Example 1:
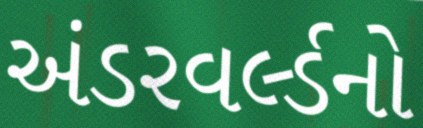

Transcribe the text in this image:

અંડરવર્લ્ડનો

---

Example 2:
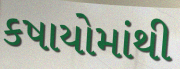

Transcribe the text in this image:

કષાયોમાંથી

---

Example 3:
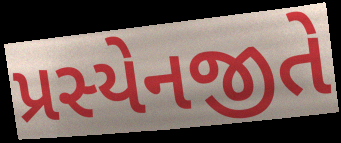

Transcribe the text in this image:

પ્રસ્યેનજીતે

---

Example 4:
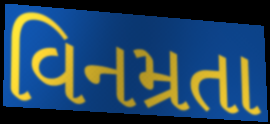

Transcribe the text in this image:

વિનમ્રતા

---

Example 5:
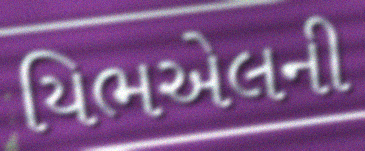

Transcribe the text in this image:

યિભએલની